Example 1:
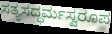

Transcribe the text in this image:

ಸತ್ಯಸದ್ಧರ್ಮಸ್ವರೂಪ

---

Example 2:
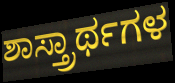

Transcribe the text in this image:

ಶಾಸ್ತ್ರಾರ್ಥಗಳ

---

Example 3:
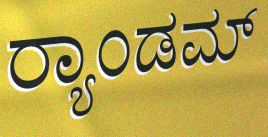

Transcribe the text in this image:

ರ್‍ಯಾಂಡಮ್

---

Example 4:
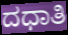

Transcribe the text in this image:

ದಧಾತಿ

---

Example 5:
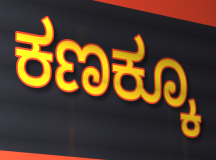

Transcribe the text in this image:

ಕಣಕ್ಕೂ